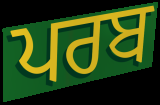
ਪਰਬ